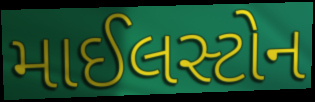
માઈલસ્ટોન